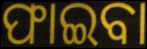
ଫାଇବା